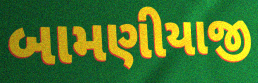
બામણીયાજી